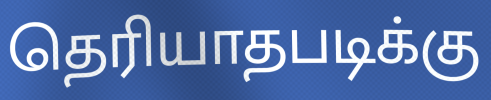
தெரியாதபடிக்கு